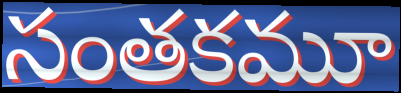
సంతకమూ